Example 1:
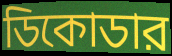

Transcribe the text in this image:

ডিকোডার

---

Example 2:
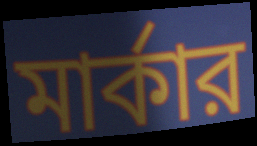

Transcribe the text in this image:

মার্কার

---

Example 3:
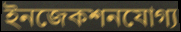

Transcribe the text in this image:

ইনজেকশনযোগ্য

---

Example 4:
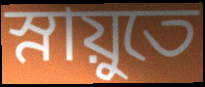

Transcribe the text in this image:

স্নায়ুতে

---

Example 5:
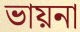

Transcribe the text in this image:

ভায়না